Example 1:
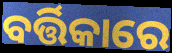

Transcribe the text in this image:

ବର୍ତ୍ତିକାରେ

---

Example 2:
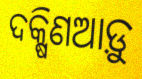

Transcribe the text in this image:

ଦକ୍ଷିଣଆଡ଼ୁ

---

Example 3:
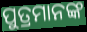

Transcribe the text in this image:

ପୁତ୍ରମାନଙ୍କ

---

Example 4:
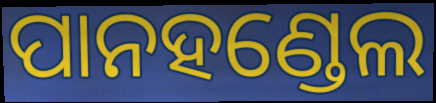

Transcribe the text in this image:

ପାନହଣ୍ଡେଲ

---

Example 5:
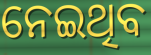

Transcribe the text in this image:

ନେଇଥିବ